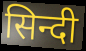
सिन्दी